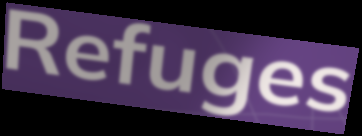
Refuges